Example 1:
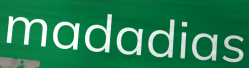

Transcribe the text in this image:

madadias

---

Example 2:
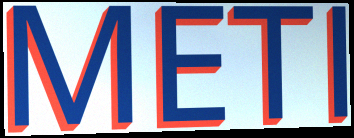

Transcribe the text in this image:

METI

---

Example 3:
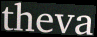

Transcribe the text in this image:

theva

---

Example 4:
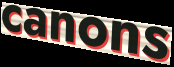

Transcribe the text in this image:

canons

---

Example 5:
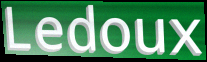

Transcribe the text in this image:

Ledoux